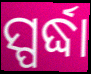
ସ୍ପର୍ଦ୍ଧା